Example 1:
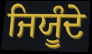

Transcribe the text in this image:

ਜਿਯੂੰਦੇ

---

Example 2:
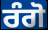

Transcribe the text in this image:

ਰੰਗੋ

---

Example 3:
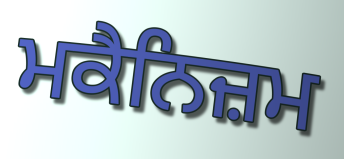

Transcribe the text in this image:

ਮਕੈਨਿਜ਼ਮ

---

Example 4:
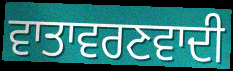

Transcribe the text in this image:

ਵਾਤਾਵਰਣਵਾਦੀ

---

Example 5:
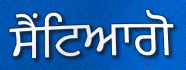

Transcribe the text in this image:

ਸੈਂਟਿਆਗੋ